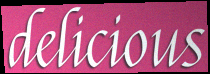
delicious